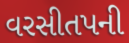
વરસીતપની